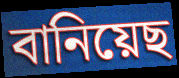
বানিয়েছ